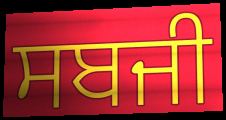
ਸਬਜੀ